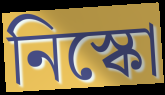
নিস্কো